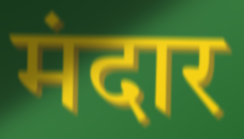
मंदार